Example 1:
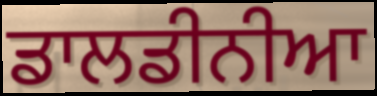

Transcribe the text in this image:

ਡਾਲਡੀਨੀਆ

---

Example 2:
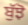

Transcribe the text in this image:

ਬੁੱਝੋ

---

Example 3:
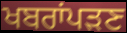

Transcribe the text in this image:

ਖਬਰਾਂਪੜਣ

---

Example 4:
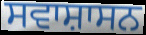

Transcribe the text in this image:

ਸਵਾਸ਼ਾਸਨ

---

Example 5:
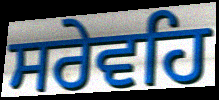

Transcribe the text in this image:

ਸਰੇਵਹਿ